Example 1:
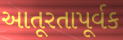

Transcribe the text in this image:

આતૂરતાપૂર્વક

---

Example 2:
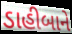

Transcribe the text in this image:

ડાહીબાને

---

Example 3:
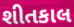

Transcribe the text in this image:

શીતકાલ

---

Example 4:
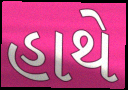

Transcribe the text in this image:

હાથે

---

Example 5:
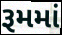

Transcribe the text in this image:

રૂમમાં